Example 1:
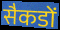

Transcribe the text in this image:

सैकडों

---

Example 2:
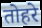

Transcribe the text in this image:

तोहरे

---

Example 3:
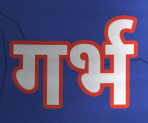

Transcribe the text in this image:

गर्भ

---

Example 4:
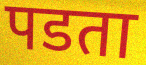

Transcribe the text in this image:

पडता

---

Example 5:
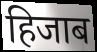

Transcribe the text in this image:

हिजाब